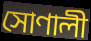
সোণালী